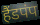
हैंडपंप